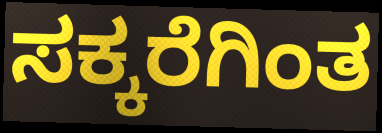
ಸಕ್ಕರೆಗಿಂತ